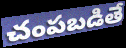
చంపబడితే